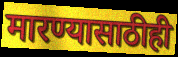
मारण्यासाठीही